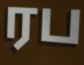
ரப